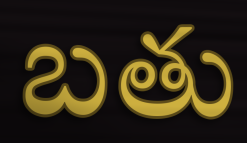
బతు